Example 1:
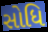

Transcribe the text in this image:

સોધિ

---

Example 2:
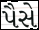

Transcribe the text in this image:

પૈસે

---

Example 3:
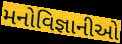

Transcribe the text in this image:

મનોવિજ્ઞાનીઓ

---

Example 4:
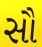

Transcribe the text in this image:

સૌ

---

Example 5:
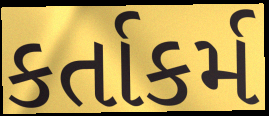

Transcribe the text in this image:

કર્તાકર્મ